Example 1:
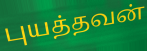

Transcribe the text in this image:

புயத்தவன்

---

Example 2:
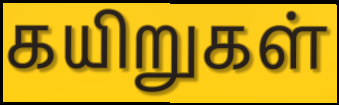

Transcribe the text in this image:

கயிறுகள்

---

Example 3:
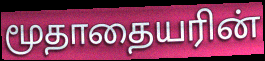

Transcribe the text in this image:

மூதாதையரின்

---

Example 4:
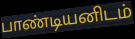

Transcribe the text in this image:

பாண்டியனிடம்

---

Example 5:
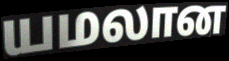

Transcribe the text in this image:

யமலான